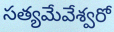
సత్యమేవేశ్వరో